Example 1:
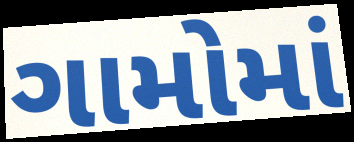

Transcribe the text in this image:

ગામોમાં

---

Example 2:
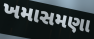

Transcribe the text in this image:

ખમાસમણા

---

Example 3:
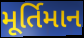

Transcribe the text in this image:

મૂર્તિમાન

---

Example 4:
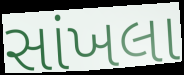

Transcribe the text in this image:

સાંખલા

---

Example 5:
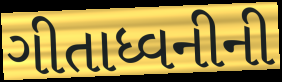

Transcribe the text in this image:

ગીતાધ્વનીની